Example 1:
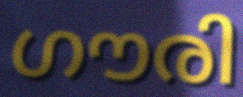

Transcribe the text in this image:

ഗൗരി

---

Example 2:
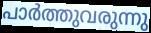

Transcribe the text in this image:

പാർത്തുവരുന്നു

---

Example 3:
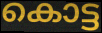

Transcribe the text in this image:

കൊട്ട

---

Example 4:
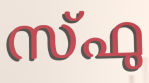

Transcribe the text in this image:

സ്ഫു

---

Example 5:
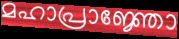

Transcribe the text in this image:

മഹാപ്രാജ്ഞോ